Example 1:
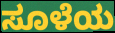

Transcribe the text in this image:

ಸೂಳೆಯ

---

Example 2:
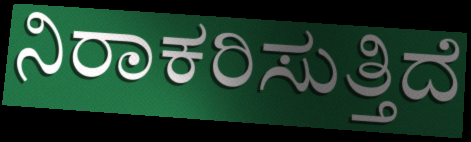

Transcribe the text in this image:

ನಿರಾಕರಿಸುತ್ತಿದೆ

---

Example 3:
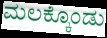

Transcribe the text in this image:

ಮಲಕ್ಕೊಂಡು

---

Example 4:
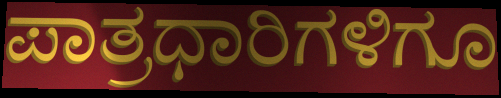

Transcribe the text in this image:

ಪಾತ್ರಧಾರಿಗಳಿಗೂ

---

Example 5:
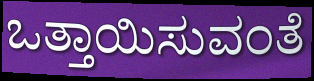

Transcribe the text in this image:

ಒತ್ತಾಯಿಸುವಂತೆ